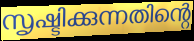
സൃഷ്ടിക്കുന്നതിന്റെ